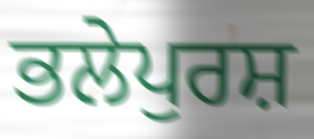
ਭਲੇਪੁਰਸ਼